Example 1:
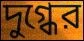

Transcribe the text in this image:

দুগ্ধের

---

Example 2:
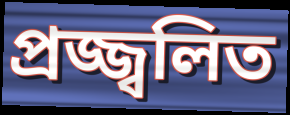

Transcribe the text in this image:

প্রজ্জ্বলিত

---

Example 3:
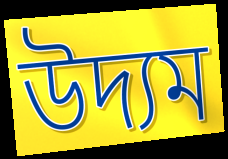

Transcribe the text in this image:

উদ্যম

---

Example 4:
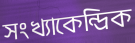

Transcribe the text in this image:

সংখ্যাকেন্দ্রিক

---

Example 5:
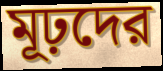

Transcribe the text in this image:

মূঢ়দের